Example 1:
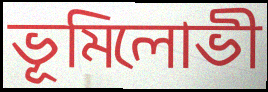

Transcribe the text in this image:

ভূমিলোভী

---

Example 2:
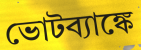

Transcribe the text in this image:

ভোটব্যাঙ্কে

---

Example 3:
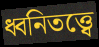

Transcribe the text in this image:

ধ্বনিতত্ত্বে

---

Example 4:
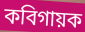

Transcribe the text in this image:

কবিগায়ক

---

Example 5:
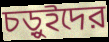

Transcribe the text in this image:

চড়ুইদের